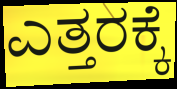
ಎತ್ತರಕ್ಕೆ